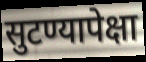
सुटण्यापेक्षा